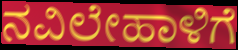
ನವಿಲೇಹಾಳಿಗೆ